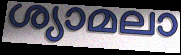
ശ്യാമലാ